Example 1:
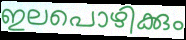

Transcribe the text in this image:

ഇലപൊഴിക്കും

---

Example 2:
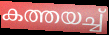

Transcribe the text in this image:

കത്തയച്ച്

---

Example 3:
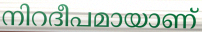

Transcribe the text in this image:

നിറദീപമായാണ്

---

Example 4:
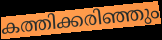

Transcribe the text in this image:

കത്തിക്കരിഞ്ഞും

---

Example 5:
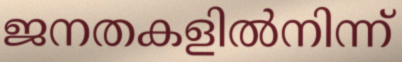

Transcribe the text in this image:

ജനതകളിൽനിന്ന്